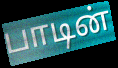
பாடின்